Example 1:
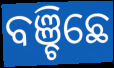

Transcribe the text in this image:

ବଞ୍ଚିଛେ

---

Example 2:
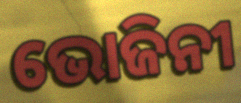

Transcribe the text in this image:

ଭୋଜିନୀ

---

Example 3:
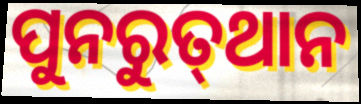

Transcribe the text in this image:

ପୁନରୁତ୍‌ଥାନ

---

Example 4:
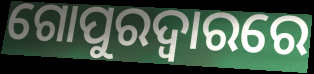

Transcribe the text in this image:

ଗୋପୁରଦ୍ବାରରେ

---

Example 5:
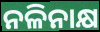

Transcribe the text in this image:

ନଳିନାକ୍ଷ